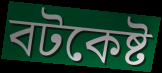
বটকেষ্ট